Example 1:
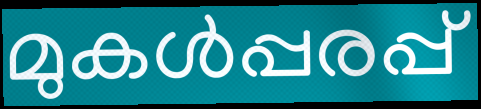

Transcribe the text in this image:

മുകൾപ്പരപ്പ്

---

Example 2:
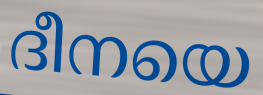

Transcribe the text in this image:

ദീനയെ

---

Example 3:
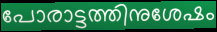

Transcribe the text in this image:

പോരാട്ടത്തിനുശേഷം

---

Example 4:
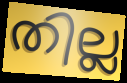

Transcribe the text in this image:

തില്ല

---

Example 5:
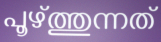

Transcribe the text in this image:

പൂഴ്ത്തുന്നത്